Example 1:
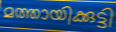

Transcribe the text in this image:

മത്തായിക്കുട്ടി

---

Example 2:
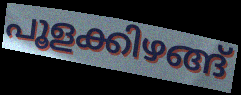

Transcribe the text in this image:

പൂളക്കിഴങ്ങ്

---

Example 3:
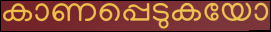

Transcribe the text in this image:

കാണപ്പെടുകയോ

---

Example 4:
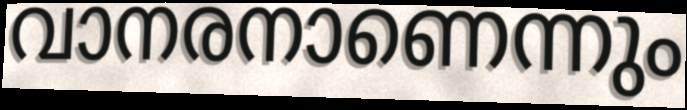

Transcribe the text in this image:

വാനരനാണെന്നും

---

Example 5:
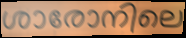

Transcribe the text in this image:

ശാരോനിലെ